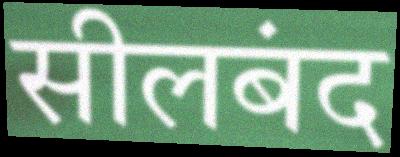
सीलबंद